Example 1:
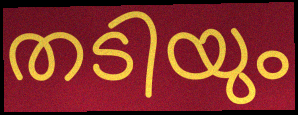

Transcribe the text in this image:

തടിയും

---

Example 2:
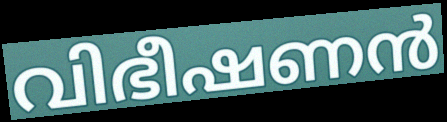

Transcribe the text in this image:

വിഭീഷണൻ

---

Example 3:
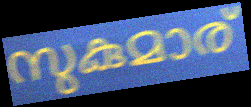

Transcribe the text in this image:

സുകുമാര്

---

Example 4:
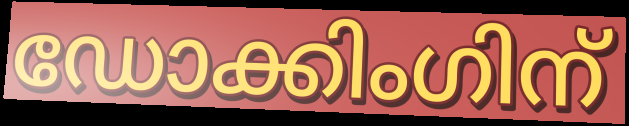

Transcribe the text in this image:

ഡോക്കിംഗിന്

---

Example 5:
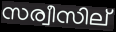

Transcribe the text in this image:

സര്വീസില്